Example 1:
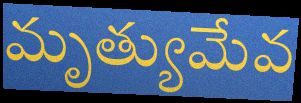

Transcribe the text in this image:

మృత్యుమేవ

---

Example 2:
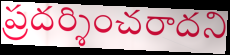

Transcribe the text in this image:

ప్రదర్శించరాదని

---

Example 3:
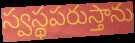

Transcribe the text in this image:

స్వస్థపరుస్తాను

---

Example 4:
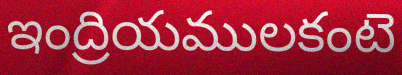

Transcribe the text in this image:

ఇంద్రియములకంటె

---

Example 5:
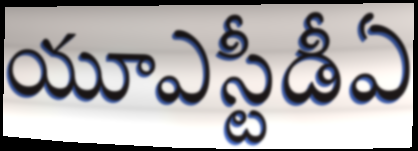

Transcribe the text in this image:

యూఎస్టీడీఏ